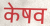
केषव